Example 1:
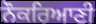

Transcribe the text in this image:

ਨੌਕਰਿਆਣੀ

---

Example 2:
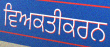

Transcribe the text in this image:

ਵਿਅਕਤੀਕਰਨ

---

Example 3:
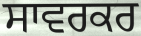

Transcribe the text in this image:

ਸਾਵਰਕਰ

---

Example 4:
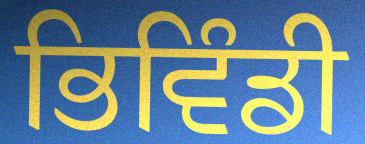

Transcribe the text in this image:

ਭਿਵਿੰਡੀ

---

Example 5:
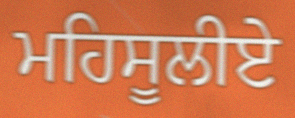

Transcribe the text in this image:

ਮਹਿਸੂਲੀਏ